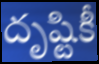
దృష్టికీ